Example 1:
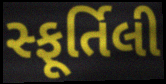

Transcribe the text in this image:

સ્ફૂર્તિલી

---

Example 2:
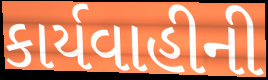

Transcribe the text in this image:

કાર્યવાહીની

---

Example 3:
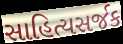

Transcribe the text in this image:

સાહિત્યસર્જક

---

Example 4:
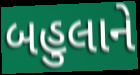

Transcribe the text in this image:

બહુલાને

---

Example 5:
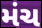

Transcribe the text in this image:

મંચ